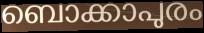
ബൊക്കാപുരം